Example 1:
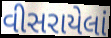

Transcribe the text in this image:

વીસરાયેલાં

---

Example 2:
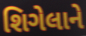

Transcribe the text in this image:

શિગેલાને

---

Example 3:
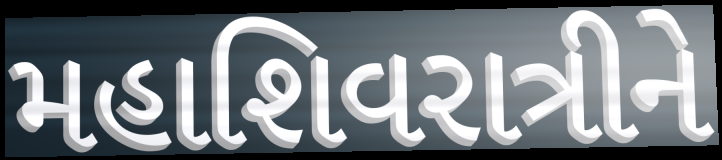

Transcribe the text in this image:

મહાશિવરાત્રીને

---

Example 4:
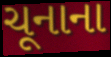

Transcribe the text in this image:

ચૂનાના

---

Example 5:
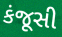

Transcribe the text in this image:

કંજૂસી